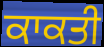
ਕਾਕਤੀ